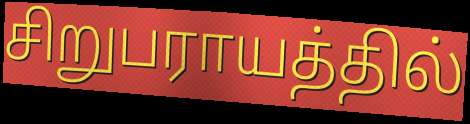
சிறுபராயத்தில்